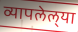
व्यापलेल्या